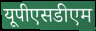
यूपीएसडीएम